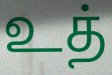
உத்